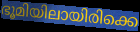
ഭൂമിയിലായിരിക്കെ